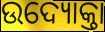
ଉଦ୍ୟୋକ୍ତା